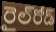
రైల్‌రోడ్